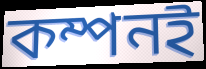
কম্পনই